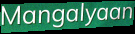
Mangalyaan